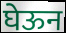
घेऊन